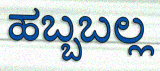
ಹಬ್ಬಬಲ್ಲ